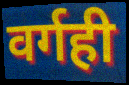
वर्गही